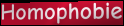
Homophobie